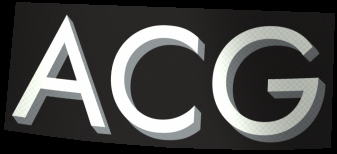
ACG